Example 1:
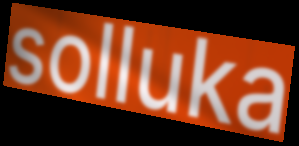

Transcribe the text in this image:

solluka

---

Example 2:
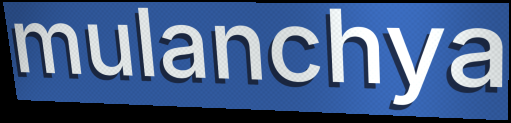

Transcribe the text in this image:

mulanchya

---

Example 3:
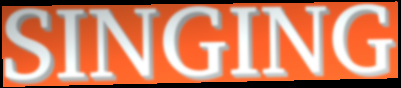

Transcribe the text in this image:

SINGING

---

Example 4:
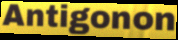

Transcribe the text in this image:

Antigonon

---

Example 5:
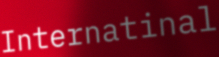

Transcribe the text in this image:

Internatinal